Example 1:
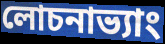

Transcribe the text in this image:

লোচনাভ্যাং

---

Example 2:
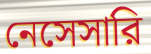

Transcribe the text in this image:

নেসেসারি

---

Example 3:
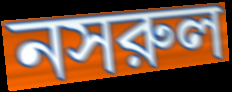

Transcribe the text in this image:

নসরুল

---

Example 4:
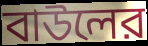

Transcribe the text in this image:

বাউলের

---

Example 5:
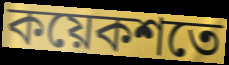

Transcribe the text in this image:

কয়েকশতে